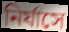
নির্যাসে